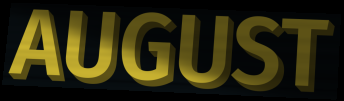
AUGUST